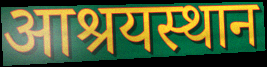
आश्रयस्थान